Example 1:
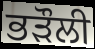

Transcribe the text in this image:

ਭੜੌਲੀ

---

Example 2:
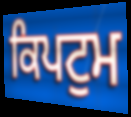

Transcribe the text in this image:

ਕਿਪਟੁਮ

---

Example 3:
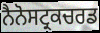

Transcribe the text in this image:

ਨੈਨੋਸਟ੍ਰਕਚਰਡ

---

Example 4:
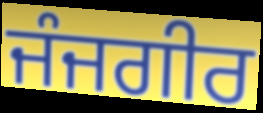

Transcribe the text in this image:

ਜੰਜਗੀਰ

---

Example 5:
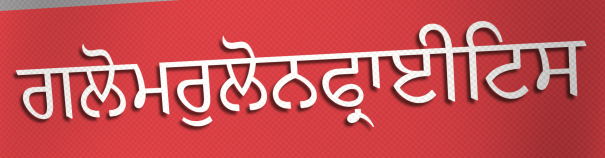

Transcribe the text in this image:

ਗਲੋਮਰੁਲੋਨਫ੍ਰਾਈਟਿਸ